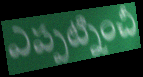
ఎప్పట్నించీ